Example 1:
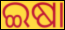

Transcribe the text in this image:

ଇଷା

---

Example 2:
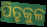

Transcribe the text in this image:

ପିତୃକୁଳ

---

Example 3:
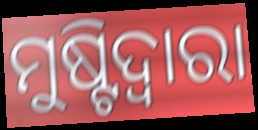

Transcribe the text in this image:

ମୁଷ୍ଟିଦ୍ୱାରା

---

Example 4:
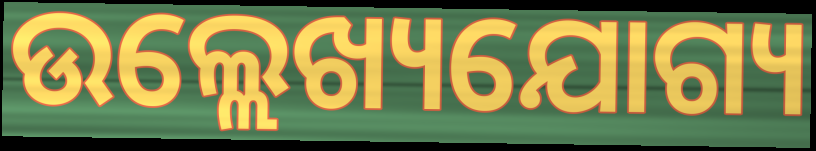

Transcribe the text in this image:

ଉଲ୍ଲେଖ୍ୟଯୋଗ୍ୟ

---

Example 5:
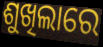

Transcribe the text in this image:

ଶୁଖିଲାରେ